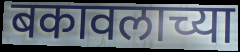
बकावलाच्या